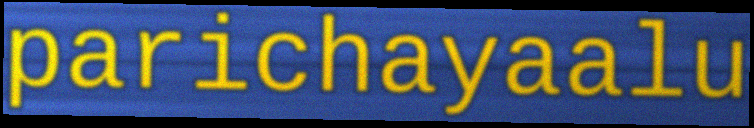
parichayaalu